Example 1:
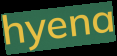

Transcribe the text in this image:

hyena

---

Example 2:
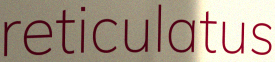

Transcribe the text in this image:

reticulatus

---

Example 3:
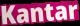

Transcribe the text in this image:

Kantar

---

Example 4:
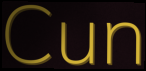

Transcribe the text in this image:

Cun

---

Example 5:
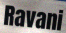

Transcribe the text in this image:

Ravani